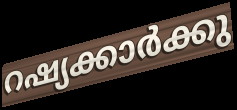
റഷ്യക്കാർക്കു